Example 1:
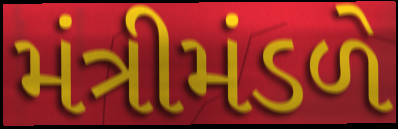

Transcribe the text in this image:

મંત્રીમંડળે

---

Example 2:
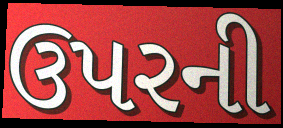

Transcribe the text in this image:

ઉપરની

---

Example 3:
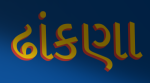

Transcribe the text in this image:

ઢાંકણા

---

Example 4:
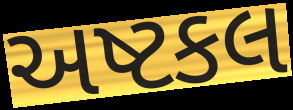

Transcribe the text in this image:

અષ્ટકલ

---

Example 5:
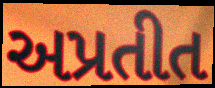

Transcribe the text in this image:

અપ્રતીત